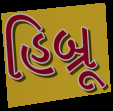
હિબ્રૂ